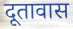
दूतावास